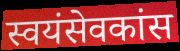
स्वयंसेवकांस